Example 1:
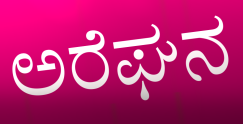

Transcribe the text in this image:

ಅರೆಘನ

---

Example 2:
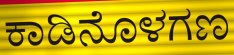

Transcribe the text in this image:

ಕಾಡಿನೊಳಗಣ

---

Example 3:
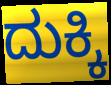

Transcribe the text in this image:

ದುಕ್ಕಿ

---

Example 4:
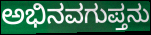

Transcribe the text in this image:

ಅಭಿನವಗುಪ್ತನು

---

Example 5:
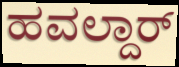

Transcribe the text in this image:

ಹವಲ್ದಾರ್